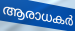
ആരാധകർ